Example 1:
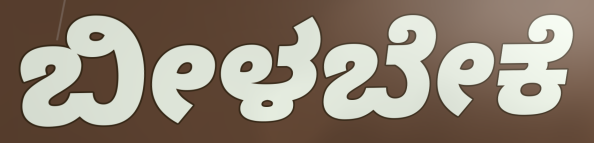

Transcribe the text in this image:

ಬೀಳಬೇಕೆ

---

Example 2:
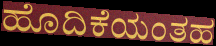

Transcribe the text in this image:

ಹೊದಿಕೆಯಂತಹ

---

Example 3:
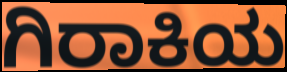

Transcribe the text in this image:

ಗಿರಾಕಿಯ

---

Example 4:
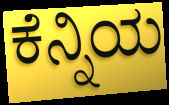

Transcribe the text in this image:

ಕೆನ್ನಿಯ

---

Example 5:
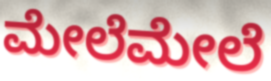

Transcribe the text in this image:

ಮೇಲೆಮೇಲೆ